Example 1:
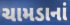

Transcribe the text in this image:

ચામડાનાં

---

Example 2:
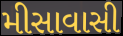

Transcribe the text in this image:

મીસાવાસી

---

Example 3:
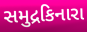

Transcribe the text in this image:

સમુદ્રકિનારા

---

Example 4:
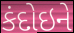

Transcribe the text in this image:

કંદોઇને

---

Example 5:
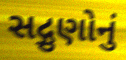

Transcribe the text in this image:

સદ્ગુણોનું